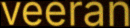
veeran